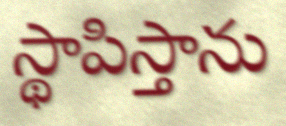
స్థాపిస్తాను